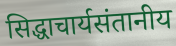
सिद्धाचार्यसंतानीय